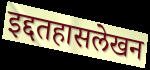
इद्दतहासलेखन